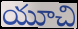
యూచి